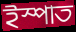
ইস্পাত